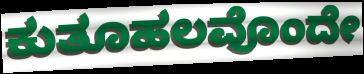
ಕುತೂಹಲವೊಂದೇ